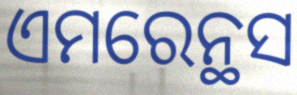
ଏମରେନ୍ଥସ